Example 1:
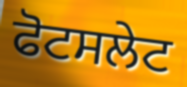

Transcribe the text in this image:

ਫੋਟਸਲੇਟ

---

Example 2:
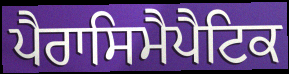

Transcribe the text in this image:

ਪੈਰਾਸਿਮੈਪੈਟਿਕ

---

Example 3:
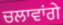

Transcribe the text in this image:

ਚਲਾਵਾਂਗੇ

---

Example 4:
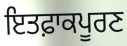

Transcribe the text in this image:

ਇਤਫ਼ਾਕਪੂਰਣ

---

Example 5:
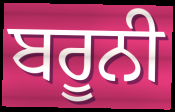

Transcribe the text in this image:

ਬਰੂਨੀ